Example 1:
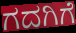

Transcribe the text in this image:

ಗದಗಿಗೆ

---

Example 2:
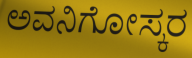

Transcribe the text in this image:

ಅವನಿಗೋಸ್ಕರ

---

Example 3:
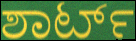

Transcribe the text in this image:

ಶಾರ್ಟ್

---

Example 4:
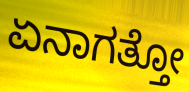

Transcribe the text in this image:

ಏನಾಗತ್ತೋ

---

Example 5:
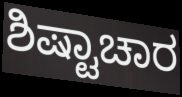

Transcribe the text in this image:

ಶಿಷ್ಟಾಚಾರ